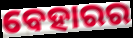
ବେହାରର